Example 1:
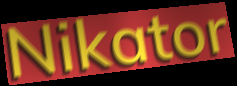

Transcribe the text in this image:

Nikator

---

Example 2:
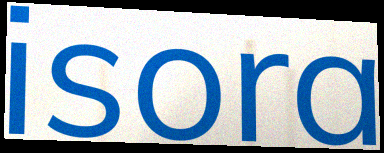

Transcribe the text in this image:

isora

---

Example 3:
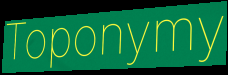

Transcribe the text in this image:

Toponymy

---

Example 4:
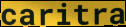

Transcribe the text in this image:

caritra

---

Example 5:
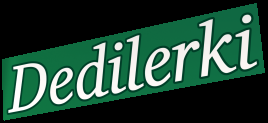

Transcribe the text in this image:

Dedilerki